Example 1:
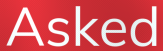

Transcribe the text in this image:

Asked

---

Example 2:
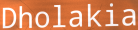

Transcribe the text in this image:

Dholakia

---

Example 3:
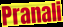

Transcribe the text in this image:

Pranali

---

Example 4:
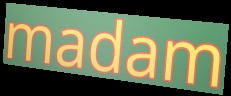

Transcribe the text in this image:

madam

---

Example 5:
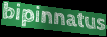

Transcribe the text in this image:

bipinnatus